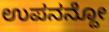
ಉಪನನ್ದೋ